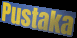
Pustaka